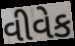
વીવેક